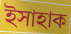
ইসাহাক